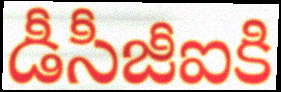
డీసీజీఐకి